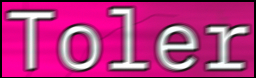
Toler